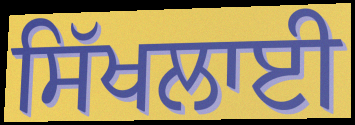
ਸਿੱਖਲਾਈ